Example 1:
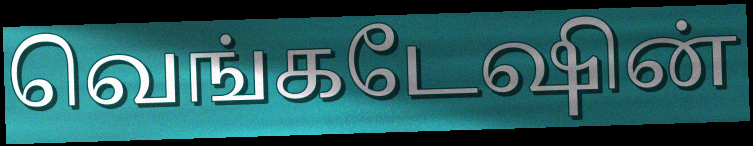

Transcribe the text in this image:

வெங்கடேஷின்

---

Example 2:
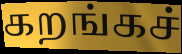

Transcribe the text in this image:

கறங்கச்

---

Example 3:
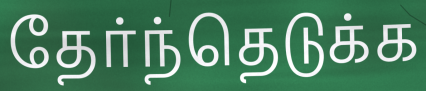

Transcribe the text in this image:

தேர்ந்தெடுக்க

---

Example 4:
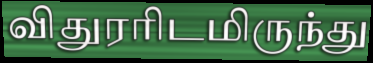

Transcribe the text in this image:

விதுரரிடமிருந்து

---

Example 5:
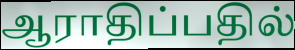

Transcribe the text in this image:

ஆராதிப்பதில்